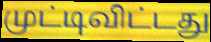
முட்டிவிட்டது